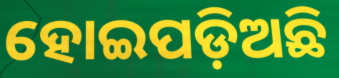
ହୋଇପଡ଼ିଅଛି